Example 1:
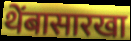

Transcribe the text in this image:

थेंबासारखा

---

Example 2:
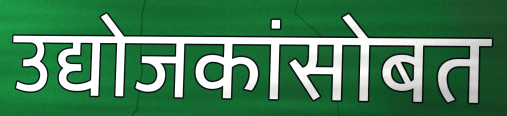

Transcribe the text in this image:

उद्योजकांसोबत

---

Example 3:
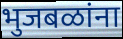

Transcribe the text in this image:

भुजबळांना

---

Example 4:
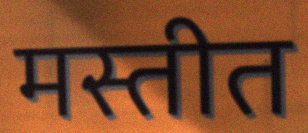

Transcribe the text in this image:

मस्तीत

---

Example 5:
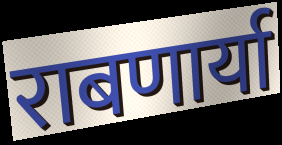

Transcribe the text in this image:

राबणार्या